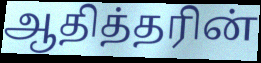
ஆதித்தரின்